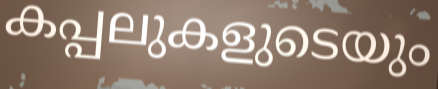
കപ്പലുകളുടെയും